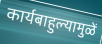
कार्यबाहुल्यामुळें